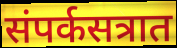
संपर्कसत्रात